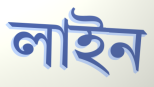
লাইন